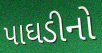
પાઘડીનો